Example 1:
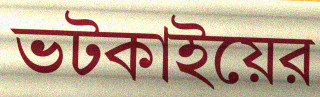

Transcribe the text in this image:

ভটকাইয়ের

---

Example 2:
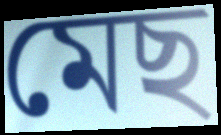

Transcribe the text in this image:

মেছ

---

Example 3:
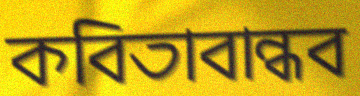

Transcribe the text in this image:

কবিতাবান্ধব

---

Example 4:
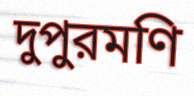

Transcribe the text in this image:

দুপুরমণি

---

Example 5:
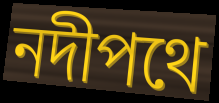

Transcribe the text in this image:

নদীপথে